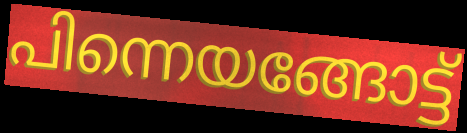
പിന്നെയങ്ങോട്ട്